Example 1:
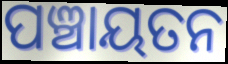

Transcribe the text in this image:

ପଞ୍ଚାୟତନ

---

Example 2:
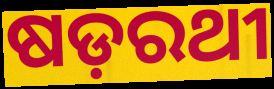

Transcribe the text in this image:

ଷଡ଼ରଥୀ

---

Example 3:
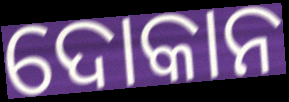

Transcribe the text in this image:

ଦୋକାନ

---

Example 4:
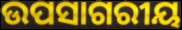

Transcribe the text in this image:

ଉପସାଗରୀୟ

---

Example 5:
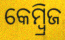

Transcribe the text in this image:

କେମ୍ବ୍ରିଜ